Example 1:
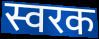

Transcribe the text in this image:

स्वरक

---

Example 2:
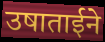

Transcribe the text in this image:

उषाताईने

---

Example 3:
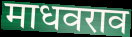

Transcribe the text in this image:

माधवराव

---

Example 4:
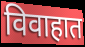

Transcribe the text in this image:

विवाहात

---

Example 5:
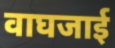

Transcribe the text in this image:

वाघजाई